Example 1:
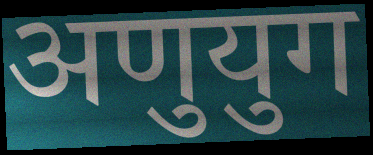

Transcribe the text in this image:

अणुयुग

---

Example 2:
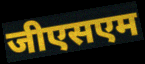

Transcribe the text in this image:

जीएसएम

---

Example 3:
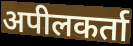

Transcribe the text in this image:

अपीलकर्ता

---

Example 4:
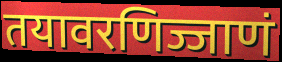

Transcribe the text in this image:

तयावरणिज्जाणं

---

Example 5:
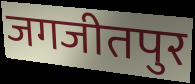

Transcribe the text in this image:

जगजीतपुर